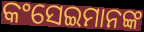
କଂସେଇମାନଙ୍କ